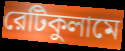
রেটিকুলামে